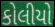
કોલીયો